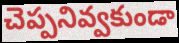
చెప్పనివ్వకుండా